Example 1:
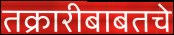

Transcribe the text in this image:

तक्रारीबाबतचे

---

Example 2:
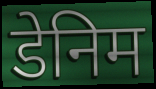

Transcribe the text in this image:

डेनिम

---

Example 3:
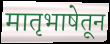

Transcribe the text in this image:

मातृभाषेतून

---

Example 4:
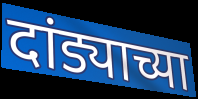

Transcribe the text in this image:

दांड्याच्या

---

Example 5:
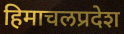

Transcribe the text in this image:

हिमाचलप्रदेश